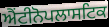
ਐਂਟੀਨੋਪਲਾਸਟਿਕ